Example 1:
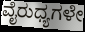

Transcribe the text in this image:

ವೈರುಧ್ಯಗಳೇ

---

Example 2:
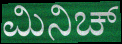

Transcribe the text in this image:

ಮಿನಿಚ್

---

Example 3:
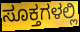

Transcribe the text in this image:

ಸೂಕ್ತಗಳಲ್ಲಿ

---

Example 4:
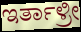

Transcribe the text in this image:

ಇರ್ತಾಳ್ರೀ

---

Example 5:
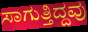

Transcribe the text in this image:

ಸಾಗುತ್ತಿದ್ದವು